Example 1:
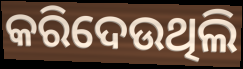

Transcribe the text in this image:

କରିଦେଉଥିଲି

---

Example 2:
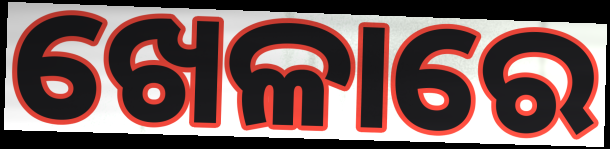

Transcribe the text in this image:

ଖେଳାରେ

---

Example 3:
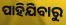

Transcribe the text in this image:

ପାହିଯିବାରୁ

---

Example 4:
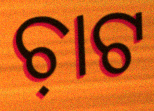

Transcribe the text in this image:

ଚ଼ାଟ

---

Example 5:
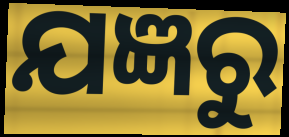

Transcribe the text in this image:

ଯଜ୍ଞରୁ